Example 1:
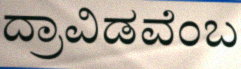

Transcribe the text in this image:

ದ್ರಾವಿಡವೆಂಬ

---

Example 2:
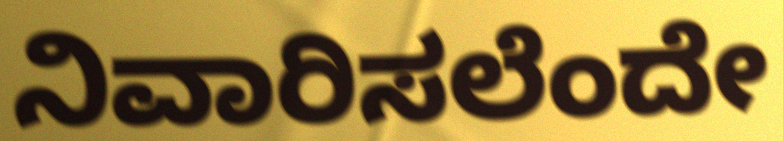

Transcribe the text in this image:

ನಿವಾರಿಸಲೆಂದೇ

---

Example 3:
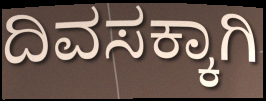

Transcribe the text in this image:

ದಿವಸಕ್ಕಾಗಿ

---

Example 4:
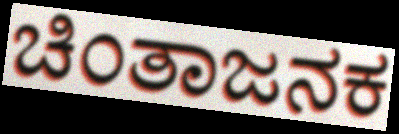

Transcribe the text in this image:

ಚಿಂತಾಜನಕ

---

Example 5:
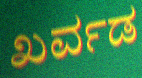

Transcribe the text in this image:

ಖರ್ವಡ